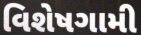
વિશેષગામી